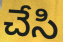
చేసి